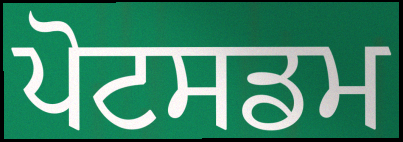
ਪੋਟਸਡਮ